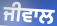
ਜੀਵਾਲ